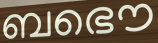
ബഭൌ